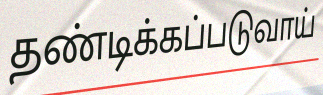
தண்டிக்கப்படுவாய்